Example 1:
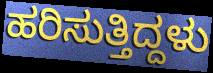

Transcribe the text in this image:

ಹರಿಸುತ್ತಿದ್ದಳು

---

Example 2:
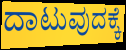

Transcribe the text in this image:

ದಾಟುವುದಕ್ಕೆ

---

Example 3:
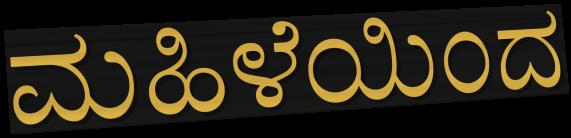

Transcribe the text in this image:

ಮಹಿಳೆಯಿಂದ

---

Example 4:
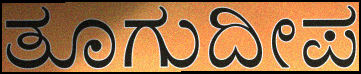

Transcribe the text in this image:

ತೂಗುದೀಪ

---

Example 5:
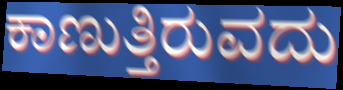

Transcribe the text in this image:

ಕಾಣುತ್ತಿರುವದು